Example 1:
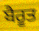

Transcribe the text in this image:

ਬੈਰੂਤ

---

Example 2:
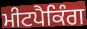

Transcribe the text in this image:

ਮੀਟਪੈਕਿੰਗ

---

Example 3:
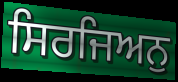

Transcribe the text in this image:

ਸਿਰਜਿਅਨੁ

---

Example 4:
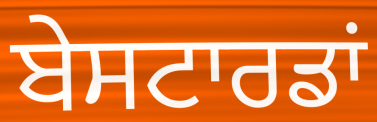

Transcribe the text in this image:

ਬੇਸਟਾਰਡਾਂ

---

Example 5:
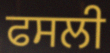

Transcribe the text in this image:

ਫਸਲੀ